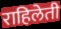
राहिलेती